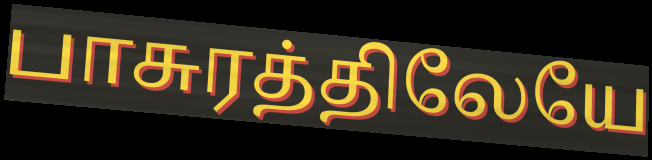
பாசுரத்திலேயே